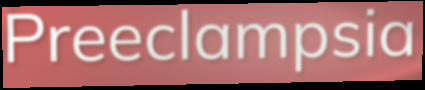
Preeclampsia